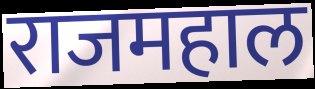
राजमहाल